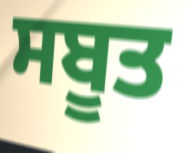
ਸਬੂਤ